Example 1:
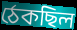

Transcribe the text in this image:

ঠেকছিল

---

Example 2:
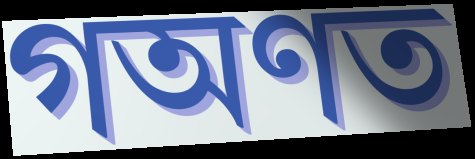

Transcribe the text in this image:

গঅণত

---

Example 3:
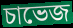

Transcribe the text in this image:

চাভেজ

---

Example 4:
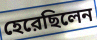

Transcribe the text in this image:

হেরেছিলেন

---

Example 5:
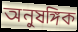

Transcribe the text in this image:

অনুষঙ্গিক